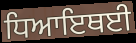
ਧਿਆਇਥਈ